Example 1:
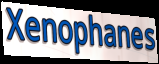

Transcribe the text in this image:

Xenophanes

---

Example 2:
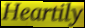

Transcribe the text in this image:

Heartily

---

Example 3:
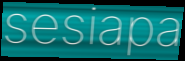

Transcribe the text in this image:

sesiapa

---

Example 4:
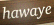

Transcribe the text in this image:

hawaye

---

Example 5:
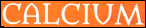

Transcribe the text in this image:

CALCIUM